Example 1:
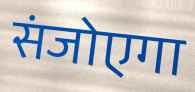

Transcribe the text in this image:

संजोएगा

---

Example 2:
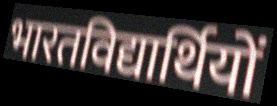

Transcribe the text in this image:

भारतविद्यार्थियों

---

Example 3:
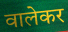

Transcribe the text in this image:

वालेकर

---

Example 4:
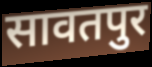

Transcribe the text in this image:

सावतपुर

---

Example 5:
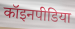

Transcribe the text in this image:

कॉइनपीडिया